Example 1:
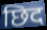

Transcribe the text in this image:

छिद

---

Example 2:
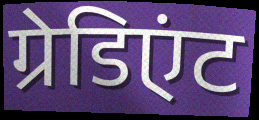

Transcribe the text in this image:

ग्रेडिएंट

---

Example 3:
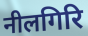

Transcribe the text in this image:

नीलगिरि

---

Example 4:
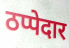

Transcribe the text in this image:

ठप्पेदार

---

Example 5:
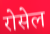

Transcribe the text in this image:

रोसेल